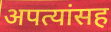
अपत्यांसह